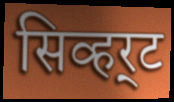
सिव्हर्ट